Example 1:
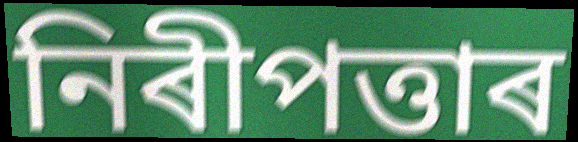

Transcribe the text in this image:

নিৰীপত্তাৰ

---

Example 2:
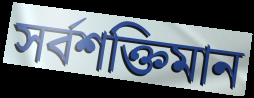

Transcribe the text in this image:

সৰ্বশক্তিমান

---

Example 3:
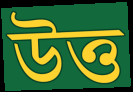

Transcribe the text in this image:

উত্ত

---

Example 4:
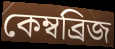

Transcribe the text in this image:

কেম্বব্ৰিজ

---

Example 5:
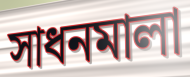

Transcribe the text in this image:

সাধনমালা